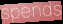
spends